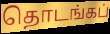
தொடங்கப்